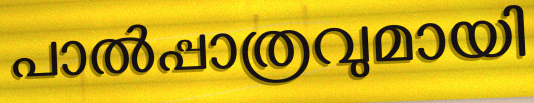
പാൽപ്പാത്രവുമായി